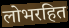
लोभरहित